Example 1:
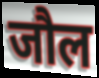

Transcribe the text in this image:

जौल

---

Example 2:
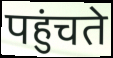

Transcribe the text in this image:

पहुंचते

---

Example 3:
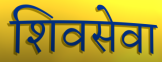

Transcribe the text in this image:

शिवसेवा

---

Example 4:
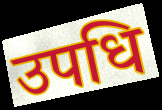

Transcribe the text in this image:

उपधि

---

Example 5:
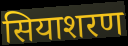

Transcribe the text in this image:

सियाशरण